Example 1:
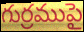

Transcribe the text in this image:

గుర్రముపై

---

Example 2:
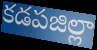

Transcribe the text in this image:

కడపజిల్లా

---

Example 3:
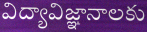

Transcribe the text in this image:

విద్యావిజ్ఞానాలకు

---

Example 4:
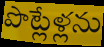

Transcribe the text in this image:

పొట్లేళ్లను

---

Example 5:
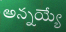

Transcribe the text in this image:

అన్నయ్యే